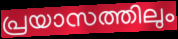
പ്രയാസത്തിലും